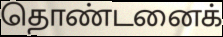
தொண்டனைக்